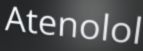
Atenolol